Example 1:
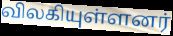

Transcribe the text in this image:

விலகியுள்ளனர்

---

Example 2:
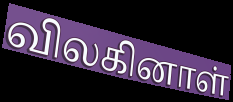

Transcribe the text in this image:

விலகினாள்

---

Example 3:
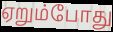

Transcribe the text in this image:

ஏறும்போது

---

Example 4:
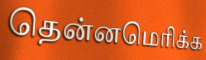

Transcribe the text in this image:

தென்னமெரிக்க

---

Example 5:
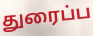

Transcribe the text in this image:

துரைப்ப